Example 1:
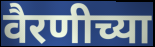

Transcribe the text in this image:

वैरणीच्या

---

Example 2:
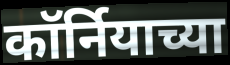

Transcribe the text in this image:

कॉर्नियाच्या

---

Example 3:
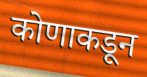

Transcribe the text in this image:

कोणाकडून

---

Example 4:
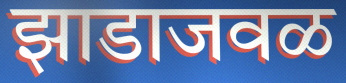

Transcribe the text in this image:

झाडाजवळ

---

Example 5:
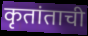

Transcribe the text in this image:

कृतांताची